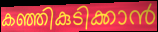
കഞ്ഞികുടിക്കാൻ